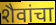
शैवांचा